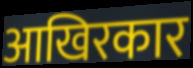
आखिरकार